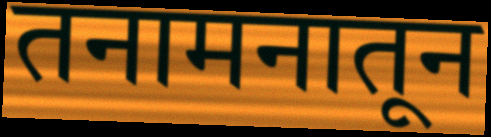
तनामनातून